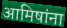
आमिषांना